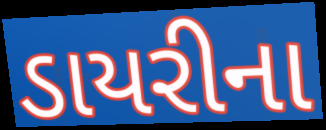
ડાયરીના